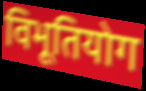
विभूतियोग